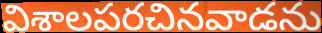
విశాలపరచినవాడను